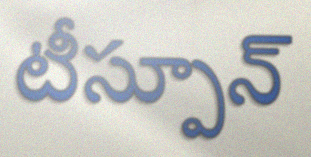
టీస్పూన్